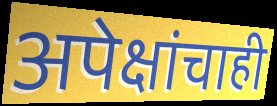
अपेक्षांचाही